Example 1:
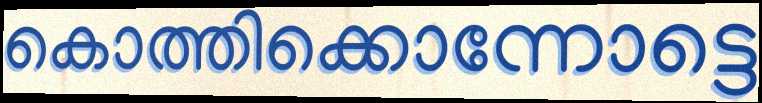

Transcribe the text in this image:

കൊത്തിക്കൊന്നോട്ടെ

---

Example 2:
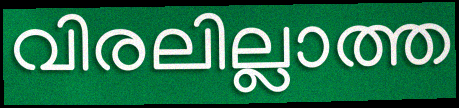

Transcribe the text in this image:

വിരലില്ലാത്ത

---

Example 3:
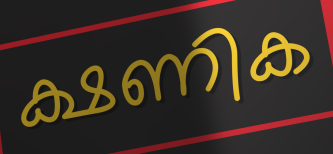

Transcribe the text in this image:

ക്ഷണിക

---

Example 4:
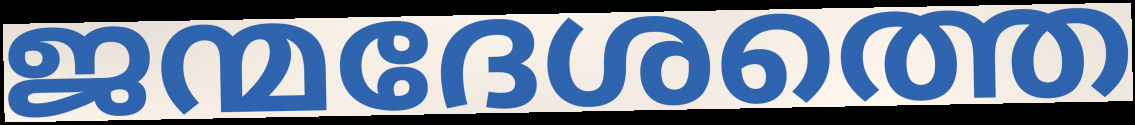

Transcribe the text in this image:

ജന്മദേശത്തെ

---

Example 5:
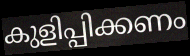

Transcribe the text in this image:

കുളിപ്പിക്കണം